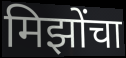
मिझोंचा